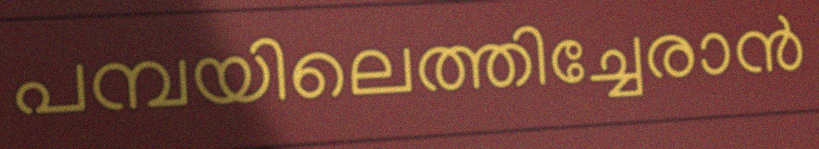
പമ്പയിലെത്തിച്ചേരാൻ